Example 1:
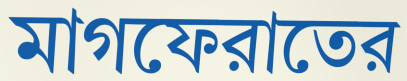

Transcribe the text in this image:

মাগফেরাতের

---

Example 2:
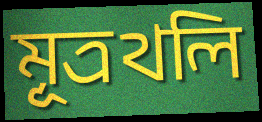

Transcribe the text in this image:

মূত্রথলি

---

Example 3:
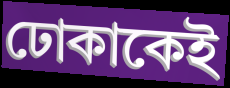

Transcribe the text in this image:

ঢোকাকেই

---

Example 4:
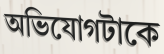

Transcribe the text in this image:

অভিযোগটাকে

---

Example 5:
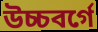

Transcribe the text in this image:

উচ্চবর্গে